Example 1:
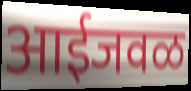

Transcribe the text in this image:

आईजवळ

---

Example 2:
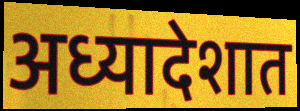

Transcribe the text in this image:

अध्यादेशात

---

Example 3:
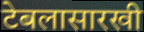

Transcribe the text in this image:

टेबलासारखी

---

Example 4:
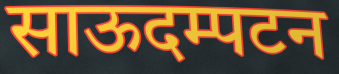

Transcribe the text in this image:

साऊदम्पटन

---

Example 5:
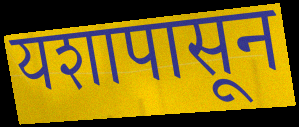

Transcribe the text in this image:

यशापासून